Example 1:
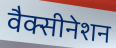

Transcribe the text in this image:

वैक्सीनेशन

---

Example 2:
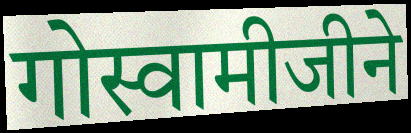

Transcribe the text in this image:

गोस्वामीजीने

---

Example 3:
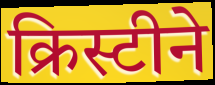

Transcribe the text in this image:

क्रिस्टीने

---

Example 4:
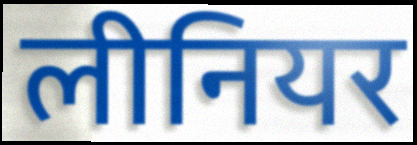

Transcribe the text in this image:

लीनियर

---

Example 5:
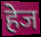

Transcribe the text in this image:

हेज